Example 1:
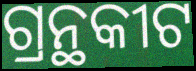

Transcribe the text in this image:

ଗ୍ରନ୍ଥକୀଟ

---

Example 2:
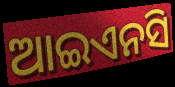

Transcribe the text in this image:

ଆଇଏନସି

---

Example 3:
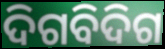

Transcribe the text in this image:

ଦିଗବିଦିଗ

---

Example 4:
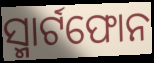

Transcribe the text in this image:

ସ୍ମାର୍ଟଫୋନ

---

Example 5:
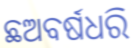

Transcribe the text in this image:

ଛଅବର୍ଷଧରି